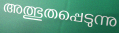
അത്ഭുതപ്പെടുന്നു